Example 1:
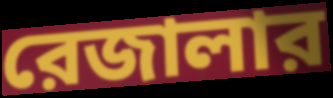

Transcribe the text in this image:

রেজালার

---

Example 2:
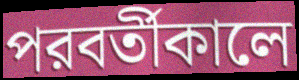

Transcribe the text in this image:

পরবর্তীকালে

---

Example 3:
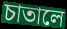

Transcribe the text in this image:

চাতালে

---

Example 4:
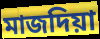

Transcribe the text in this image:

মাজদিয়া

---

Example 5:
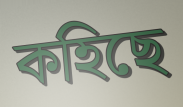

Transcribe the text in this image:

কহিছে